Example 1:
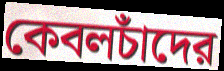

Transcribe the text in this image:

কেবলচাঁদের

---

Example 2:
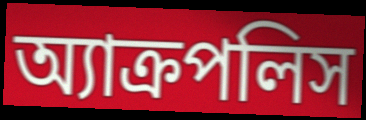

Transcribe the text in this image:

অ্যাক্রপলিস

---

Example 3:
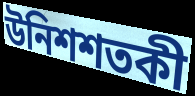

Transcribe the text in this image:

উনিশশতকী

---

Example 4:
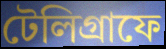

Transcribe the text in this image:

টেলিগ্রাফে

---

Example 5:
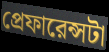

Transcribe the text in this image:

প্রেফারেন্সটা